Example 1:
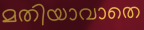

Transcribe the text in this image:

മതിയാവാതെ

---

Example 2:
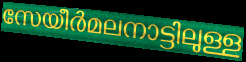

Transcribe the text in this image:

സേയീർമലനാട്ടിലുള്ള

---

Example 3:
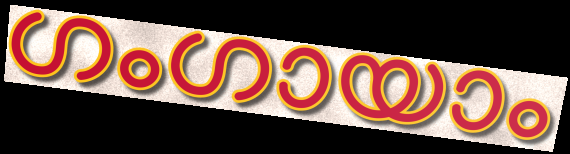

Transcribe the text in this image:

ഗംഗായാം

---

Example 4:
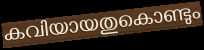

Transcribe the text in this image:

കവിയായതുകൊണ്ടും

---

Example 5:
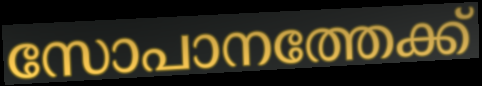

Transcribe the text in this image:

സോപാനത്തേക്ക്